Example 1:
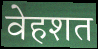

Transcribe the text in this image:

वेहशत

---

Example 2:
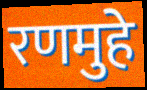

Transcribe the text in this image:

रणमुहे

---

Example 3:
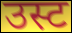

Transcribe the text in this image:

उस्ट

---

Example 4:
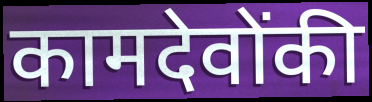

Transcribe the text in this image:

कामदेवोंकी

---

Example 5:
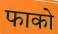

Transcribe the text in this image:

फाको